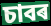
চাবৰ